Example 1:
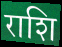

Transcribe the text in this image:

राशि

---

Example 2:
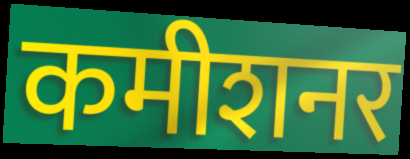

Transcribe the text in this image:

कमीशनर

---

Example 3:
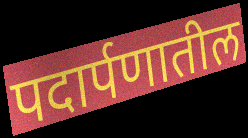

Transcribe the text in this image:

पदार्पणातील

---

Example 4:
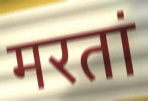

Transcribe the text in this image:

मरतां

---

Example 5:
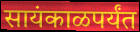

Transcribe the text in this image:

सायंकाळपर्यंत